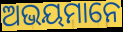
ଅଭୟମାନେ